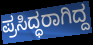
ಪ್ರಸಿದ್ಧರಾಗಿದ್ದ